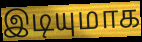
இடியுமாக